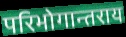
परिभोगान्तराय